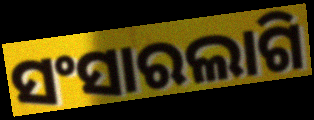
ସଂସାରଲାଗି